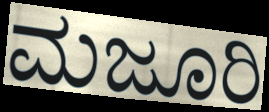
ಮಜೂರಿ